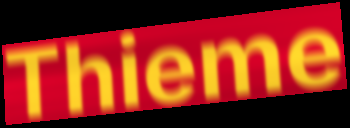
Thieme